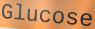
Glucose